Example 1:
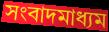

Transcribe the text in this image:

সংবাদমাধ্যম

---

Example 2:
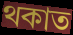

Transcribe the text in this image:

থকাত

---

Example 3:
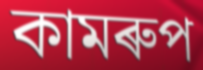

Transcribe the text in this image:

কামৰুপ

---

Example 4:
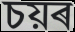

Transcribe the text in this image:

চয়ৰ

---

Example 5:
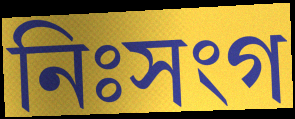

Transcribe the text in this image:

নিঃসংগ